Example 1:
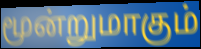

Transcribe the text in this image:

மூன்றுமாகும்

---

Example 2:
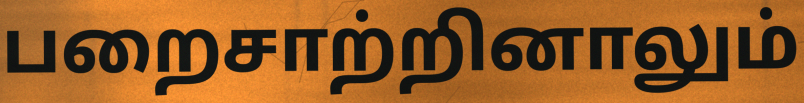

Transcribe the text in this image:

பறைசாற்றினாலும்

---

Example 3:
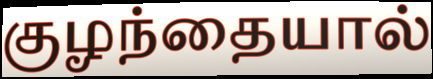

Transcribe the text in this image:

குழந்தையால்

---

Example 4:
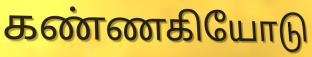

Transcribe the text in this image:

கண்ணகியோடு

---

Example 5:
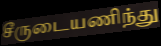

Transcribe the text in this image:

சீருடையணிந்து